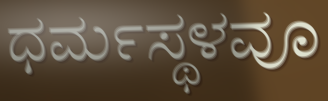
ಧರ್ಮಸ್ಥಳವೂ